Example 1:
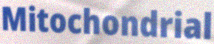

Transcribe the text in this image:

Mitochondrial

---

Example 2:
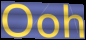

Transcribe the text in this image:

Ooh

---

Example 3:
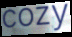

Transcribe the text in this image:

cozy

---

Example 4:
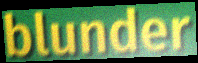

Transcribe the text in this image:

blunder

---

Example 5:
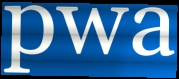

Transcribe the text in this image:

pwa